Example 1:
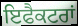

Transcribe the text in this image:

ਇਫੈਕਟਰਾਂ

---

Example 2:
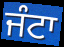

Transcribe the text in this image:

ਜੰਟਾ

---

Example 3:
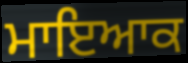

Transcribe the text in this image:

ਮਾਇਆਕ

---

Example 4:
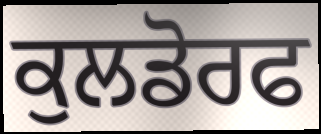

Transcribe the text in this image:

ਕੁਲਡੋਰਫ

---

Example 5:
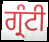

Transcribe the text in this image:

ਗ੍ਰੰਟੀ